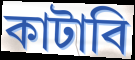
কাটাবি